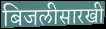
बिजलीसारखी